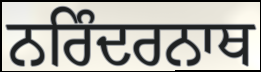
ਨਰਿੰਦਰਨਾਥ